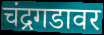
चंद्रगडावर